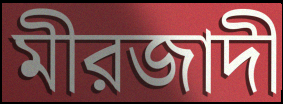
মীরজাদী